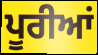
ਪੂਰੀਆਂ